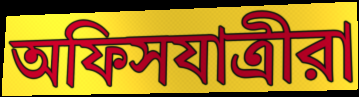
অফিসযাত্রীরা